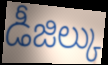
డీజిల్కు